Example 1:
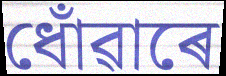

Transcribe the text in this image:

ধোঁৱাৰে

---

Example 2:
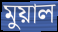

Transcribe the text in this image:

মুয়াল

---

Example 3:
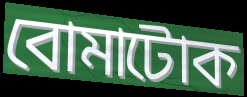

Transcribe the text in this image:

বোমাটোক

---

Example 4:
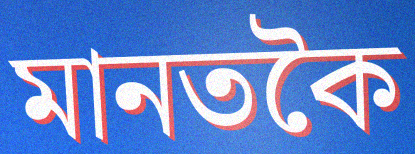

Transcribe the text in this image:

মানতকৈ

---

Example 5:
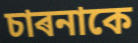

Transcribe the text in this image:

চাৰনাকে